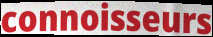
connoisseurs